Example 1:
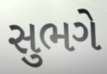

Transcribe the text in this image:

સુભગે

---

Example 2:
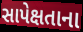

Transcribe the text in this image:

સાપેક્ષતાના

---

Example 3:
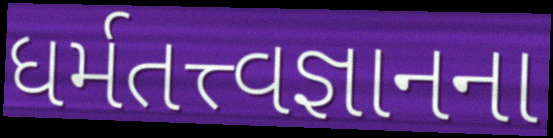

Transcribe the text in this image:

ધર્મતત્ત્વજ્ઞાનના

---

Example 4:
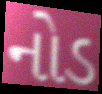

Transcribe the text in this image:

નોડ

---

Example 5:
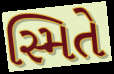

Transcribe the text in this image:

સ્મિતે